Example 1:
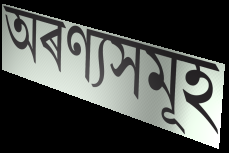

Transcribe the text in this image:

অৰণ্যসমূহ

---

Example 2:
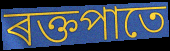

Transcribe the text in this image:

ৰক্তপাতে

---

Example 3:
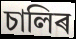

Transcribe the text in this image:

চালিৰ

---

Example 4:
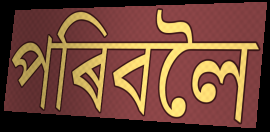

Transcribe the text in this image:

পৰিবলৈ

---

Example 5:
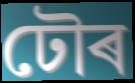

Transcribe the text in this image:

ঢৌৰ